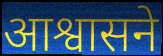
आश्वासने